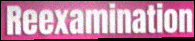
Reexamination